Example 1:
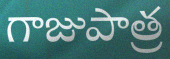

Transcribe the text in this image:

గాజుపాత్ర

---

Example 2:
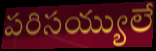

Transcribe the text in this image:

పరిసయ్యులే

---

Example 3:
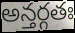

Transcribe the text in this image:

అన్తర్గతః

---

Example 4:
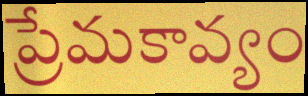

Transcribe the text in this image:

ప్రేమకావ్యం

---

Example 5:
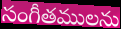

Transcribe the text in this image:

సంగీతములను